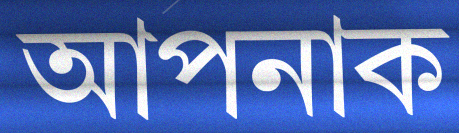
আপনাক